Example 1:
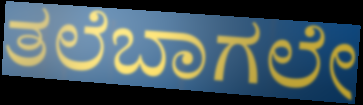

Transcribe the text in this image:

ತಲೆಬಾಗಲೇ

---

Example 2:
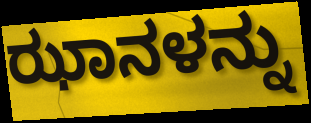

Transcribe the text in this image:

ಝಾನಳನ್ನು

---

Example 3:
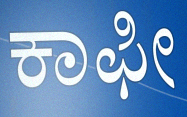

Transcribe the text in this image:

ಕಾಫೀ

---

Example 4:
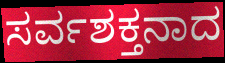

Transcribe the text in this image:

ಸರ್ವಶಕ್ತನಾದ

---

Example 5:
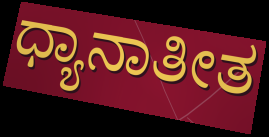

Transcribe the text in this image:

ಧ್ಯಾನಾತೀತ